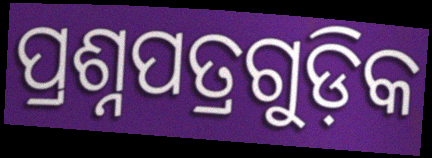
ପ୍ରଶ୍ନପତ୍ରଗୁଡ଼ିକ